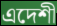
এদেশী